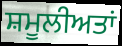
ਸ਼ਮੂਲੀਅਤਾਂ